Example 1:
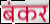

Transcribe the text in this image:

बंकर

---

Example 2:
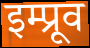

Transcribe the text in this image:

इम्प्रूव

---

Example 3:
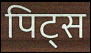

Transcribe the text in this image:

पिट्स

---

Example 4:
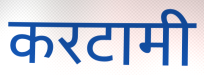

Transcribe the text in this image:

करटामी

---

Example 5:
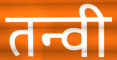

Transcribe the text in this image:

तन्वी